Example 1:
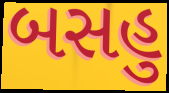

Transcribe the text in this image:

બસહુ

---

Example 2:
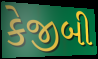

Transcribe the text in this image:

કેજીબી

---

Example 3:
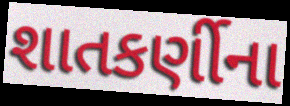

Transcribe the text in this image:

શાતકર્ણીના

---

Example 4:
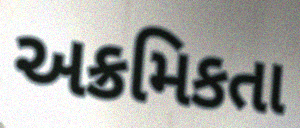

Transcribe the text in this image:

અક્રમિકતા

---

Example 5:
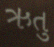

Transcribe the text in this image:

ઋતુ